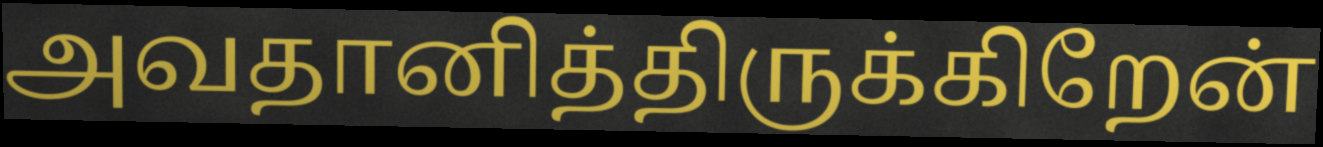
அவதானித்திருக்கிறேன்